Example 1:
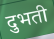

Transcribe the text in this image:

दुभती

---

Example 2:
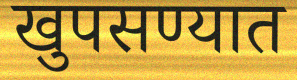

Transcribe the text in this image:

खुपसण्यात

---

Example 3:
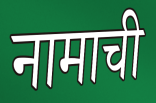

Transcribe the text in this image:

नामाची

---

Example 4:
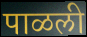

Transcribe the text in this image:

पाळली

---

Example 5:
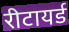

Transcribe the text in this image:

रीटायर्ड